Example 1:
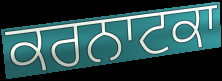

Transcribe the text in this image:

ਕਰਨਾਟਕਾ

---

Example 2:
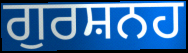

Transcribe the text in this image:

ਗੁਰਸ਼ਨਹ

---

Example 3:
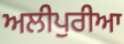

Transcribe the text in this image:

ਅਲੀਪੁਰੀਆ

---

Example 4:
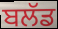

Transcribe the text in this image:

ਬਲੱਡ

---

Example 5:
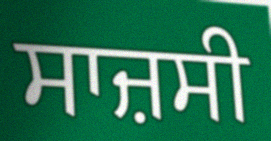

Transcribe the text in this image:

ਸਾਜ਼ਸੀ